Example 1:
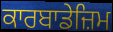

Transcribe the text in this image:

ਕਾਰਬਾਡੇਜ਼ਿਮ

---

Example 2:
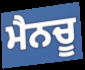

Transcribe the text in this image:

ਮੈਨਚੂ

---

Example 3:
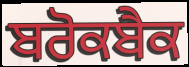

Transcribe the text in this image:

ਬਰੋਕਬੈਕ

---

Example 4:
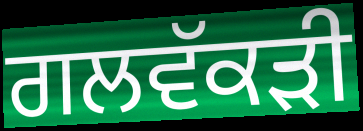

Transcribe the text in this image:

ਗਲਵੱਕੜੀ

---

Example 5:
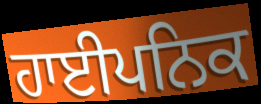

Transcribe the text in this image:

ਹਾਈਪਨਿਕ